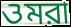
ওমরা